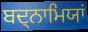
ਬਦ੍ਨਾਮਿਯਾਂ